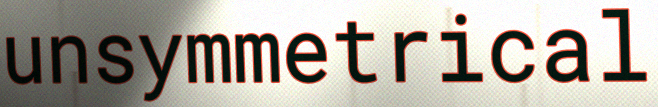
unsymmetrical